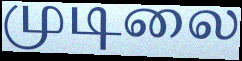
முடிலை